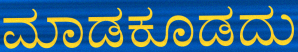
ಮಾಡಕೂಡದು